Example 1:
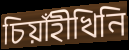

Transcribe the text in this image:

চিয়াঁহীখিনি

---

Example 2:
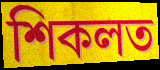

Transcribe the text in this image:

শিকলত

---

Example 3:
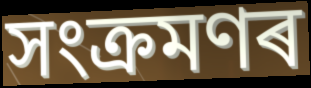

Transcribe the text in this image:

সংক্ৰমণৰ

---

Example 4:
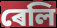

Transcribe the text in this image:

ৰেলি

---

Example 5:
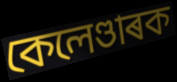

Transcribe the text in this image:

কেলেণ্ডাৰক